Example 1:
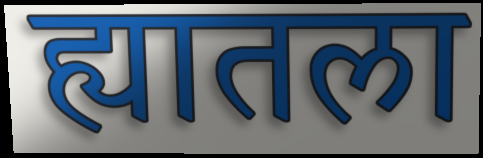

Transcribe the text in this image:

ह्यातला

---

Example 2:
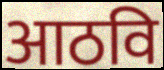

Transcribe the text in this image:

आठवि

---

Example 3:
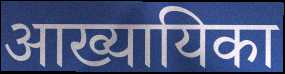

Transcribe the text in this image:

आख्यायिका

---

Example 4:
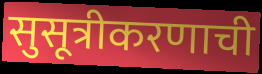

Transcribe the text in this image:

सुसूत्रीकरणाची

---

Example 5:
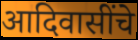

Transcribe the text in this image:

आदिवासींचे